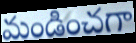
మండించగా